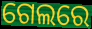
ଗେଲରେ